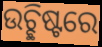
ଉଚ୍ଛିଷ୍ଟରେ